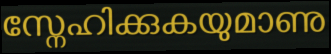
സ്നേഹിക്കുകയുമാണു